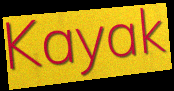
Kayak